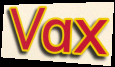
Vax